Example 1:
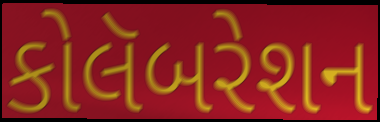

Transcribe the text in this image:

કોલૅબરેશન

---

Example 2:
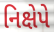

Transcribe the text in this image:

નિક્ષેપે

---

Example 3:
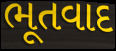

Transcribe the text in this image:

ભૂતવાદ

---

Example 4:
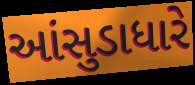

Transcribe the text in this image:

આંસુડાધારે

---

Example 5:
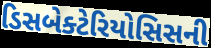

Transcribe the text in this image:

ડિસબેક્ટેરિયોસિસની